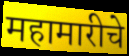
महामारीचे